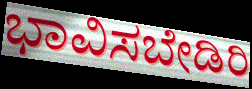
ಭಾವಿಸಬೇಡಿರಿ